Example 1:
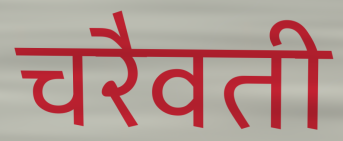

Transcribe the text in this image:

चरैवती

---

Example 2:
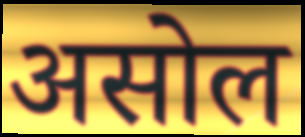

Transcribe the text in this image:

असोल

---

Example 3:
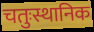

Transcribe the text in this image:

चतुःस्थानिक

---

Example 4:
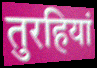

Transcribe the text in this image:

तुरहियां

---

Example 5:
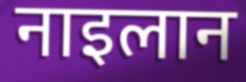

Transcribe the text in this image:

नाइलान